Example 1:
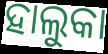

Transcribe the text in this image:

ହାଲୁକା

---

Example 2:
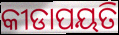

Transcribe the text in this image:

କୀଡାପୟତି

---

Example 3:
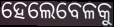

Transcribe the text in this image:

ହେଲେବେଳକୁ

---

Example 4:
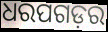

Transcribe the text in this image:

ଧରପଗଡ଼ର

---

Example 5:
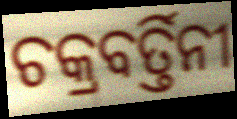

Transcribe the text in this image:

ଚକ୍ରବର୍ତ୍ତିନୀ